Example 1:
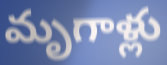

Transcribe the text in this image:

మృగాళ్లు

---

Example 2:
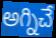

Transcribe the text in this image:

అగ్నిచే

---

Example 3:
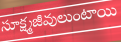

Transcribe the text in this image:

సూక్ష్మజీవులుంటాయి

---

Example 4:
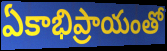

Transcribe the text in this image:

ఏకాభిప్రాయంతో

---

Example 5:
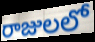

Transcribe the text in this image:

రాజులలో